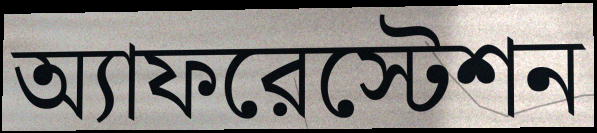
অ্যাফরেস্টেশন